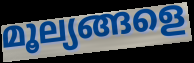
മൂല്യങ്ങളെ